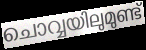
ചൊവ്വയിലുമുണ്ട്